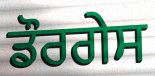
ਡੌਰਗੇਸ